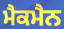
ਮੈਕਮੈਨ